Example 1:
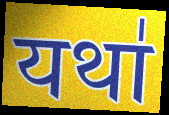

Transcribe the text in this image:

यथा॑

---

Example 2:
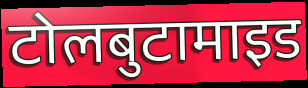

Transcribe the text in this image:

टोलबुटामाइड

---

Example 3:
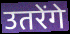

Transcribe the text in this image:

उतरेंगे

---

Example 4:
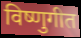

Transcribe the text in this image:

विष्णुगीत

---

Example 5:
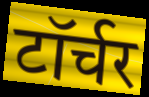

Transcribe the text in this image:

टॉर्चर